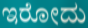
ಇರೋದು